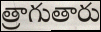
త్రాగుతారు